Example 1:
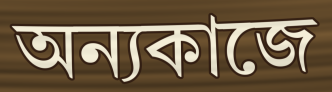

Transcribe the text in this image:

অন্যকাজে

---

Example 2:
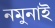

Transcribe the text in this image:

নমুনাই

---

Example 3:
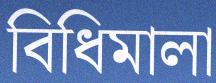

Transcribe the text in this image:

বিধিমালা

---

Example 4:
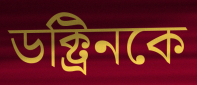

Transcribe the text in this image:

ডক্ট্রিনকে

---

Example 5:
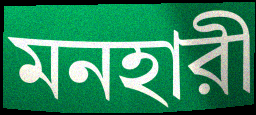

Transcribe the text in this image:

মনহারী